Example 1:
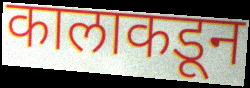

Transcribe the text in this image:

कालाकडून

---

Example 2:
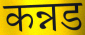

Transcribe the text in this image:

कन्नड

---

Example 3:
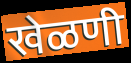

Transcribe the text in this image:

खेळणी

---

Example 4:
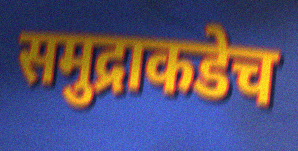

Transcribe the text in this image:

समुद्राकडेच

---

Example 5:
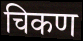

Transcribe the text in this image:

चिकण